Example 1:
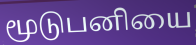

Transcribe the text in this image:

மூடுபனியை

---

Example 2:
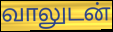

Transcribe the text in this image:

வாலுடன்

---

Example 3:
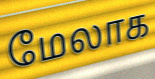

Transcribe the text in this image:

மேலாக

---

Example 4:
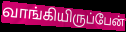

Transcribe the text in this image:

வாங்கியிருப்பேன்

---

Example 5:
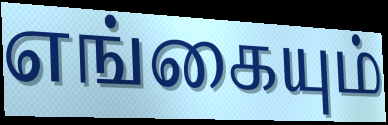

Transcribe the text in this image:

எங்கையும்